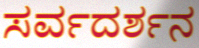
ಸರ್ವದರ್ಶನ